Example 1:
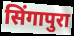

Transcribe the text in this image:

सिंगापुरा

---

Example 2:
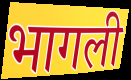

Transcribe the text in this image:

भागली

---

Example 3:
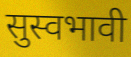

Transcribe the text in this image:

सुस्वभावी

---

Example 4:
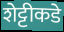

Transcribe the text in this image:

शेट्टीकडे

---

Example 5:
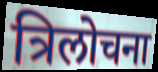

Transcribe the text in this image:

त्रिलोचना